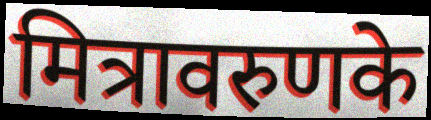
मित्रावरुणके